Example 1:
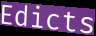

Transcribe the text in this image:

Edicts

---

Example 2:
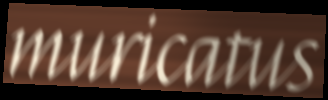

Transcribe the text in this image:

muricatus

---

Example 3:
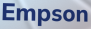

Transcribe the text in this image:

Empson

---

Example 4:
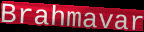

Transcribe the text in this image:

Brahmavar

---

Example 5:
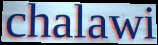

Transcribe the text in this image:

chalawi